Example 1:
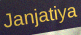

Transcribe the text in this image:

Janjatiya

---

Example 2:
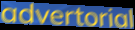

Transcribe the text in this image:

advertorial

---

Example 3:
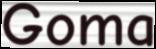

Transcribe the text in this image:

Goma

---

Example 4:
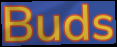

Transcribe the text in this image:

Buds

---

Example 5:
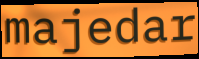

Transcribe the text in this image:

majedar